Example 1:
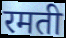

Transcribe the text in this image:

रमती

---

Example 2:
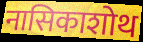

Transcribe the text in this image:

नासिकाशोथ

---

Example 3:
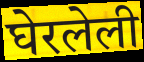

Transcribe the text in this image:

घेरलेली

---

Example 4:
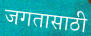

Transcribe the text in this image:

जगतासाठी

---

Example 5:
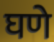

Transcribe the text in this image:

घणे